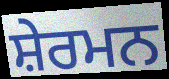
ਸ਼ੇਰਮਨ